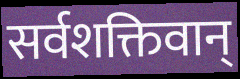
सर्वशक्तिवान्